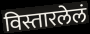
विस्तारलेलं